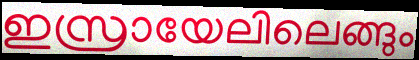
ഇസ്രായേലിലെങ്ങും